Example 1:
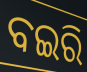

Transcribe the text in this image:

ବଇରି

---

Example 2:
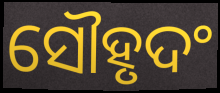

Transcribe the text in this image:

ସୌହୃଦଂ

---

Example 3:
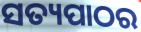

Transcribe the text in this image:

ସତ୍ୟପାଠର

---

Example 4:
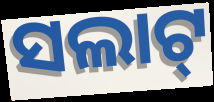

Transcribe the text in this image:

ସଲାଟ୍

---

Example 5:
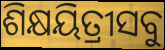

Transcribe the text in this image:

ଶିକ୍ଷୟିତ୍ରୀସବୁ